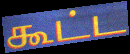
கூட்ட